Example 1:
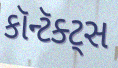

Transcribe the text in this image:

કૉન્ટૅક્ટ્સ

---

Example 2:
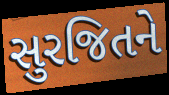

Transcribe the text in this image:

સુરજિતને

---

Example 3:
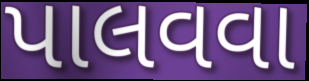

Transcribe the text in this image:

પાલવવા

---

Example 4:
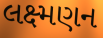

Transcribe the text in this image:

લક્ષ્મણન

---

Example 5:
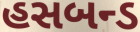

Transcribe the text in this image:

હસબન્ડ